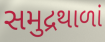
સમુદ્રથાળાં